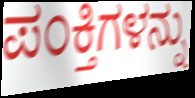
ಪಂಕ್ತಿಗಳನ್ನು